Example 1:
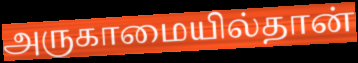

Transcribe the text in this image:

அருகாமையில்தான்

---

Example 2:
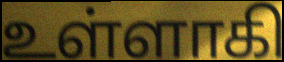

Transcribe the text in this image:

உள்ளாகி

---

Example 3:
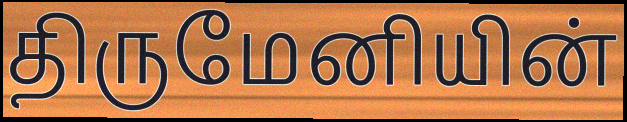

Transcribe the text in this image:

திருமேனியின்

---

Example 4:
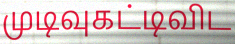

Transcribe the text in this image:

முடிவுகட்டிவிட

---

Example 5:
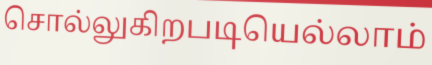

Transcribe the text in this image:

சொல்லுகிறபடியெல்லாம்